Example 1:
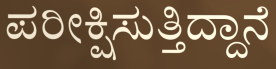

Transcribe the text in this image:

ಪರೀಕ್ಷಿಸುತ್ತಿದ್ದಾನೆ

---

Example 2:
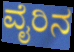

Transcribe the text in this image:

ವೈರಿನ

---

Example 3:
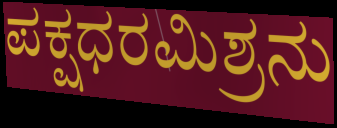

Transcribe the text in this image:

ಪಕ್ಷಧರಮಿಶ್ರನು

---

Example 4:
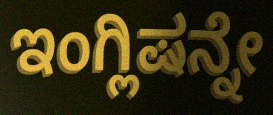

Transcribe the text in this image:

ಇಂಗ್ಲಿಷನ್ನೇ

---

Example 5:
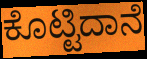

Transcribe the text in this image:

ಕೊಟ್ಟಿದಾನೆ